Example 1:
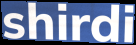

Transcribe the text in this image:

shirdi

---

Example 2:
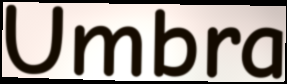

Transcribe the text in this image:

Umbra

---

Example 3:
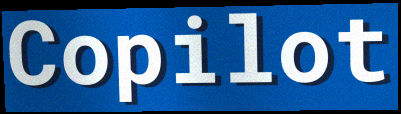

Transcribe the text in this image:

Copilot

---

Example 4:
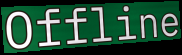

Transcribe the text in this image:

Offline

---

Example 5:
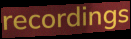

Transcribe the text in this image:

recordings